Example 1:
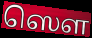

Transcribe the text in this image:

ஸௌ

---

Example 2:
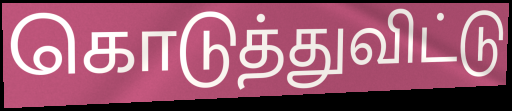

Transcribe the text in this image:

கொடுத்துவிட்டு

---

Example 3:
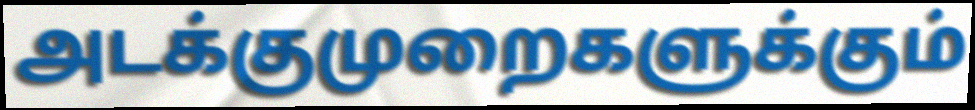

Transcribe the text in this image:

அடக்குமுறைகளுக்கும்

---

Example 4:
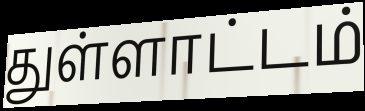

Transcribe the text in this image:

துள்ளாட்டம்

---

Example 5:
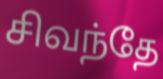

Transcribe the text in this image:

சிவந்தே